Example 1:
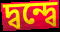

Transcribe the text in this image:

দ্বন্দ্বে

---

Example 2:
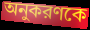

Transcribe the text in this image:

অনুকরণকে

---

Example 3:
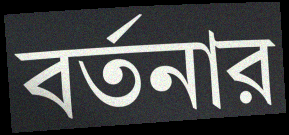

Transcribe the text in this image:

বর্তনার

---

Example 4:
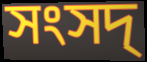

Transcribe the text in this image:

সংসদ্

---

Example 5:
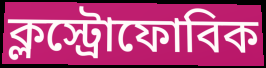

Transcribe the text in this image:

ক্লস্ট্রোফোবিক